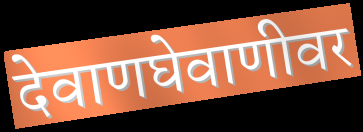
देवाणघेवाणीवर